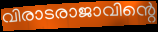
വിരാടരാജാവിന്റെ